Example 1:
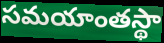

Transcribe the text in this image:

సమయాంతస్థా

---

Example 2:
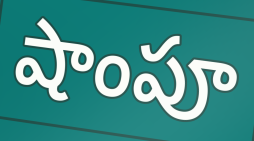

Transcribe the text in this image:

షాంపూ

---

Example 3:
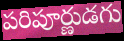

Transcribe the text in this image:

పరిపూర్ణుడగు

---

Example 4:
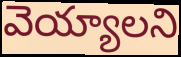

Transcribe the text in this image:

వెయ్యాలని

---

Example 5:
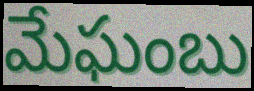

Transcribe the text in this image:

మేఘంబు